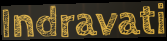
Indravati